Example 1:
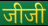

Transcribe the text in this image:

जीजी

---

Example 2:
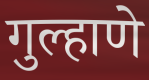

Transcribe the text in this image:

गुल्हाणे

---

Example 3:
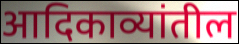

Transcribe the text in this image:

आदिकाव्यांतील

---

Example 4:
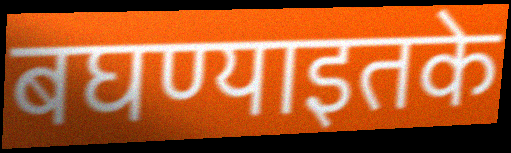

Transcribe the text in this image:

बघण्याइतके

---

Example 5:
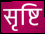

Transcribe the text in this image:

सृष्टि